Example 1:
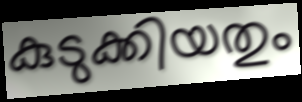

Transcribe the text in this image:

കുടുക്കിയതും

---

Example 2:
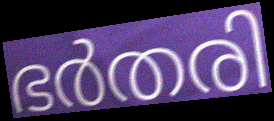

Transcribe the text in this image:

ഭർതരി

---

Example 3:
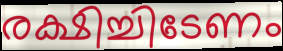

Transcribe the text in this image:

രക്ഷിച്ചിടേണം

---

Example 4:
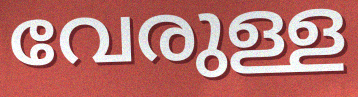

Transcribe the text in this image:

വേരുള്ള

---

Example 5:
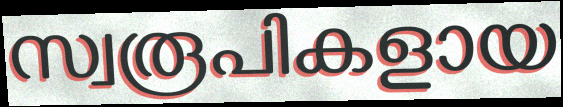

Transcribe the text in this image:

സ്വരൂപികളായ